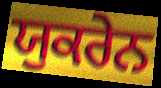
ਯੁਕਰੇਨ